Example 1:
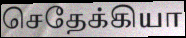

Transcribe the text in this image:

செதேக்கியா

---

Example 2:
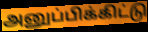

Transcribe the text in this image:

அனுப்பிக்கிட்டு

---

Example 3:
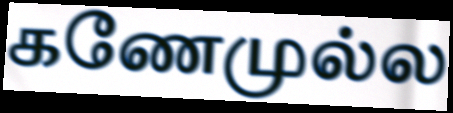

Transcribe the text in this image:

கணேமுல்ல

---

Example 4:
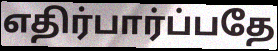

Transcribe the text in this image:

எதிர்பார்ப்பதே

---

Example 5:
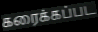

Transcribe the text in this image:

கரைக்கப்பட